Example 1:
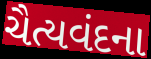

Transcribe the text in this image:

ચૈત્યવંદના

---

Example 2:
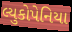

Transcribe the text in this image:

લ્યુકોપેનિયા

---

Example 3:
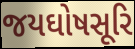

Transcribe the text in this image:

જયઘોષસૂરિ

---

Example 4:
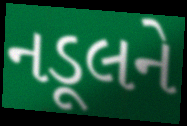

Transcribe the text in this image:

નડૂલને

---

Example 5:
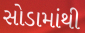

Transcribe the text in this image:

સોડામાંથી